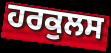
ਹਰਕੁਲਸ